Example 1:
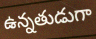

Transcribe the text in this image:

ఉన్నతుడుగా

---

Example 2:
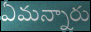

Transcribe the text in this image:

ఏమన్నారు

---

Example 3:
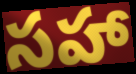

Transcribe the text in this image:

సహా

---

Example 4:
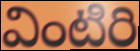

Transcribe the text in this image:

వింటిరి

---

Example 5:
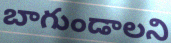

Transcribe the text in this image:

బాగుండాలని